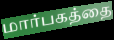
மார்பகத்தை